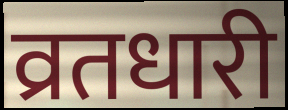
व्रतधारी